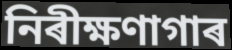
নিৰীক্ষণাগাৰ